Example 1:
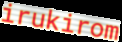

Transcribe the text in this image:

irukirom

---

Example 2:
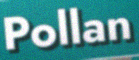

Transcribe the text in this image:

Pollan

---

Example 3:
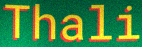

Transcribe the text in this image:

Thali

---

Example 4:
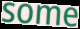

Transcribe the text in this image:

some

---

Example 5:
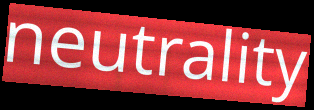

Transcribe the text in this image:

neutrality